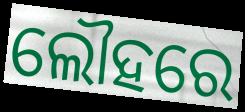
ଲୌହରେ